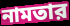
নামতার